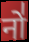
नो॑